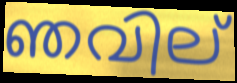
ഞവില്